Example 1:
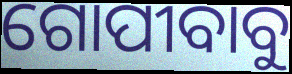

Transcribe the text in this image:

ଗୋପୀବାବୁ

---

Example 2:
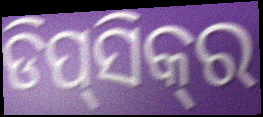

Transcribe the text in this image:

ଡିପ୍‌ସିକ୍‌ର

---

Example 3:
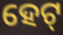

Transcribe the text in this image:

ହେଟ୍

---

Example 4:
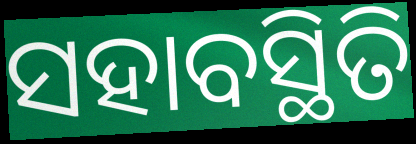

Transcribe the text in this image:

ସହାବସ୍ଥିତି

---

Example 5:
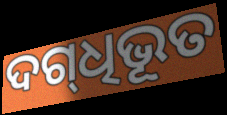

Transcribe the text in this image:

ଦଗ୍‌ଧିଭୂତ